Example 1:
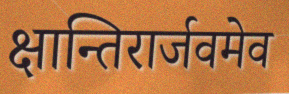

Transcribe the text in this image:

क्षान्तिरार्जवमेव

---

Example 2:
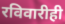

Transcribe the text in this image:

रविवारीही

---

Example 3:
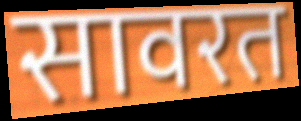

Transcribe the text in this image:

सावरत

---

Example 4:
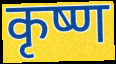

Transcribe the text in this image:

कृष्ण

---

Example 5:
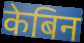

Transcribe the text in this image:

केबिन